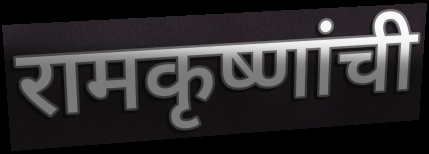
रामकृष्णांची